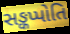
સઙ્કપ્પોતિ